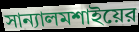
সান্যালমশাইয়ের